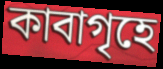
কাবাগৃহে